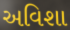
અવિશા